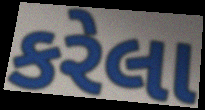
કરેલા